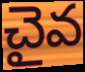
చైవ